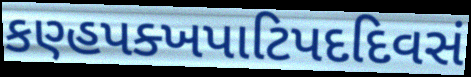
કણ્હપક્ખપાટિપદદિવસં